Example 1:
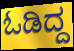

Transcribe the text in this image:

ಓಡಿದ್ದ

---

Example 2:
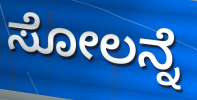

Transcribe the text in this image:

ಸೋಲನ್ನೆ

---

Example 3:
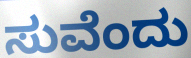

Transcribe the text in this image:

ಸುವೆಂದು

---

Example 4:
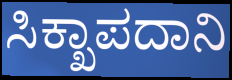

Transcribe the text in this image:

ಸಿಕ್ಖಾಪದಾನಿ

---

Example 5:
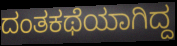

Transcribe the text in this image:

ದಂತಕಥೆಯಾಗಿದ್ದ